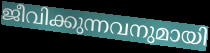
ജീവിക്കുന്നവനുമായി